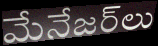
మేనేజర్‌లు